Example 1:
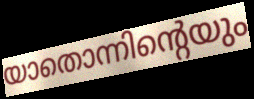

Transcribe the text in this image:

യാതൊന്നിന്റെയും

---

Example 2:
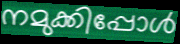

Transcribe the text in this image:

നമുക്കിപ്പോൾ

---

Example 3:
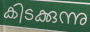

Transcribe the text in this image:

കിടക്കുന്നു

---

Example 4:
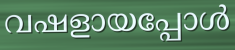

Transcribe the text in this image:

വഷളായപ്പോൾ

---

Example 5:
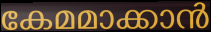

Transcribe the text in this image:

കേമമാക്കാൻ